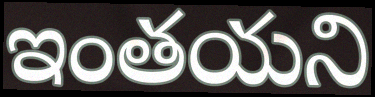
ఇంతయని